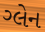
ગ્લેન